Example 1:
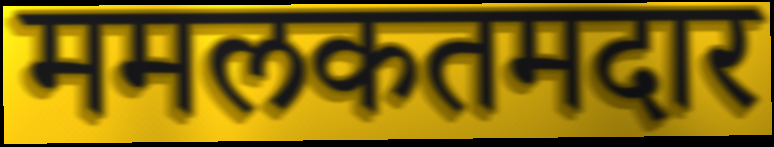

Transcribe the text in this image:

ममलकतमदार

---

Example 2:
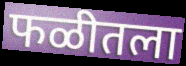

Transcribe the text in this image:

फळीतला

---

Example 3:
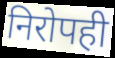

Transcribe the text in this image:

निरोपही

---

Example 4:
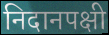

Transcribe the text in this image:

निदानपक्षी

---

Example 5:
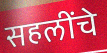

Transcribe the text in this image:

सहलींचे